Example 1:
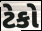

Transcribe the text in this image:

ટેકો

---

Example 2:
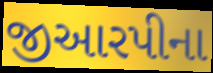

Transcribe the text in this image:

જીઆરપીના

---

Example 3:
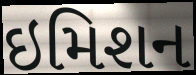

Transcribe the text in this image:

ઇમિશન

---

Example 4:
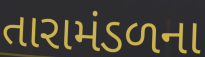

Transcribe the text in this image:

તારામંડળના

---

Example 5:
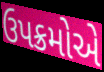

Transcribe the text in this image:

ઉપક્રમોએ